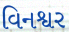
વિનશ્વર